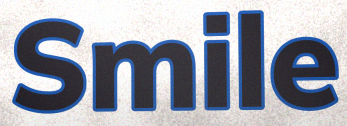
Smile